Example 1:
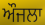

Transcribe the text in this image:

ਔਜਲਾ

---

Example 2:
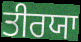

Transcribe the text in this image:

ਤੀਰਯਾ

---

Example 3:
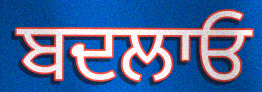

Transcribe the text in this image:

ਬਦਲਾਓ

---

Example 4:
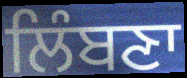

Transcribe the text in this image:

ਲਿੰਬਣਾ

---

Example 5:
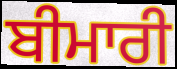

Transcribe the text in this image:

ਬੀਮਾਰੀ